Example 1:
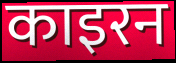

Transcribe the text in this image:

काइरन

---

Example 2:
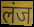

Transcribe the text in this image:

लंज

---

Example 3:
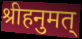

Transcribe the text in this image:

श्रीहनुमत्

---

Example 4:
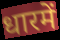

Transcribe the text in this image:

धारमें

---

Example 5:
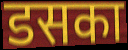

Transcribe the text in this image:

डसका